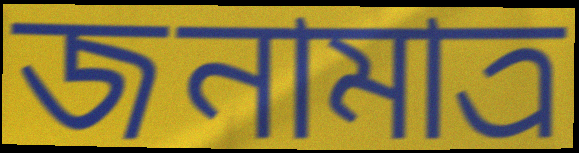
জনামাত্র